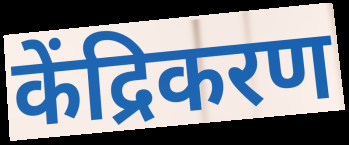
केंद्रिकरण